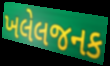
ખલેલજનક